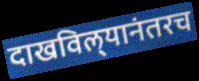
दाखविल्यानंतरच